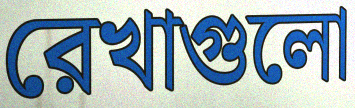
রেখাগুলো